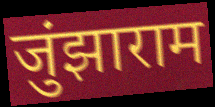
जुंझाराम